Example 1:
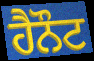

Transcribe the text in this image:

ਹੈਨੌਟ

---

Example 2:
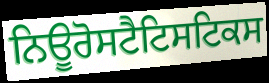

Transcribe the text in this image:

ਨਿਊਰੋਸਟੈਟਿਸਟਿਕਸ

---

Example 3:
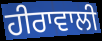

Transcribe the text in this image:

ਹੀਰਾਵਾਲੀ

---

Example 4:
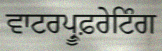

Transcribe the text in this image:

ਵਾਟਰਪ੍ਰੂਫ਼ਰੇਟਿੰਗ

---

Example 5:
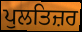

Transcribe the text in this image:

ਪੁਲਤਿਜ਼ਰ